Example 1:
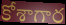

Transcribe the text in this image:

కోశాగార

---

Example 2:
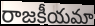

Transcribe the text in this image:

రాజకీయమా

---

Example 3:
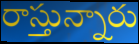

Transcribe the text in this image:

రాస్తున్నారు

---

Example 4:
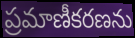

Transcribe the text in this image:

ప్రమాణీకరణను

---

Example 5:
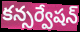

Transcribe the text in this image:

కన్సర్వేషన్